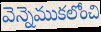
వెన్నెముకలోంచి